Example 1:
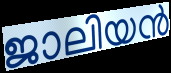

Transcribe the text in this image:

ജാലിയൻ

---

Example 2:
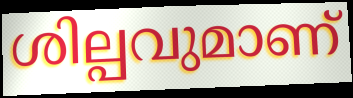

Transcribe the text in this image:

ശില്പവുമാണ്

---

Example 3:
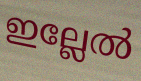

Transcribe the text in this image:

ഇല്ലേൽ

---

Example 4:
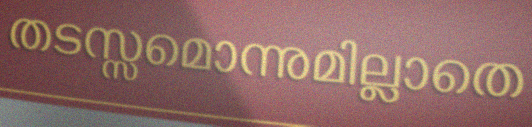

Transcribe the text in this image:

തടസ്സമൊന്നുമില്ലാതെ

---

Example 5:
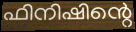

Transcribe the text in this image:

ഫിനിഷിന്റെ